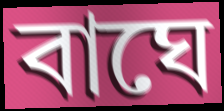
বাঘে